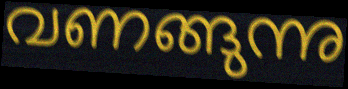
വണങ്ങുന്നു